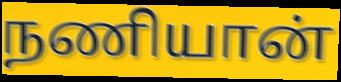
நணியான்